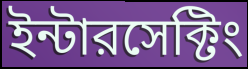
ইন্টারসেক্টিং